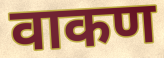
वाकण